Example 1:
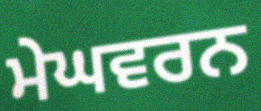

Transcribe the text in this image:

ਮੇਘਵਰਨ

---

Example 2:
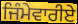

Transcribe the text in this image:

ਜਿੰਮੇਵਾਰੀਏ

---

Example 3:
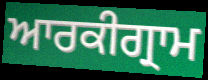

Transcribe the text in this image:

ਆਰਕੀਗ੍ਰਾਮ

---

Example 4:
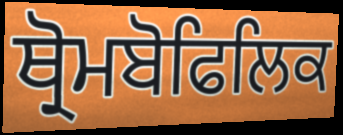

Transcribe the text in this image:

ਥ੍ਰੋਮਬੋਫਿਲਿਕ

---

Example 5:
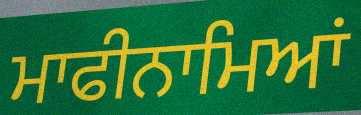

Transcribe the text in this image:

ਮਾਫੀਨਾਮਿਆਂ